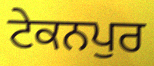
ਟੇਕਨਪੁਰ